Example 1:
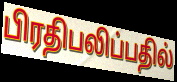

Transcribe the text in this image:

பிரதிபலிப்பதில்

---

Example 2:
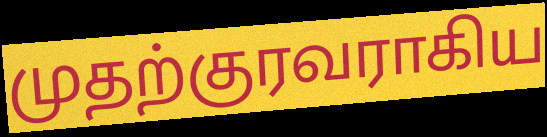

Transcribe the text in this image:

முதற்குரவராகிய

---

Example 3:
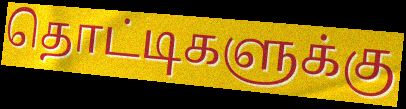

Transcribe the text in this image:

தொட்டிகளுக்கு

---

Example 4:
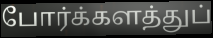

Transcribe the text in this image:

போர்க்களத்துப்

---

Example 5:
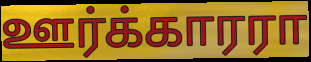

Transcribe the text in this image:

ஊர்க்காரரா